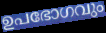
ഉപഭോഗവും